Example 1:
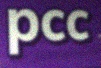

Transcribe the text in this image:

pcc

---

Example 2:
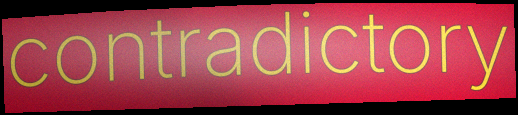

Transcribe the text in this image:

contradictory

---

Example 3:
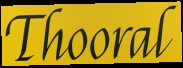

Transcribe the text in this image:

Thooral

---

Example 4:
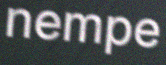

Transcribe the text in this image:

nempe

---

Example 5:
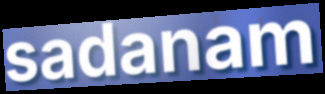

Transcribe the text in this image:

sadanam